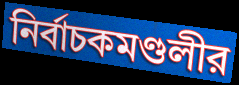
নির্বাচকমণ্ডলীর